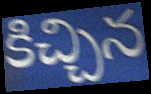
కిచ్చిన